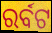
ରର୍ବଟ